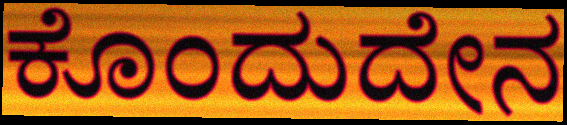
ಕೊಂದುದೇನ